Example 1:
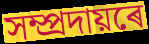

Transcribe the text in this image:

সম্প্ৰদায়ৰে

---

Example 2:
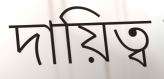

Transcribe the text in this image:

দায়িত্ব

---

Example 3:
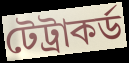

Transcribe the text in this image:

টেট্ৰাকৰ্ড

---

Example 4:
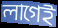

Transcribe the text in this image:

লাগেই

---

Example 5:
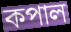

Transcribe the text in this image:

কপাল